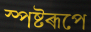
স্পষ্টৰূপে